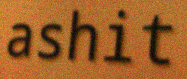
ashit